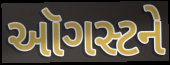
ઑગસ્ટને